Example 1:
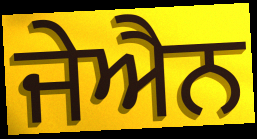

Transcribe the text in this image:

ਜੇਐਨ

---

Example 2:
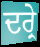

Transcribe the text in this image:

ਦਰ੍ਰੇ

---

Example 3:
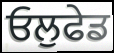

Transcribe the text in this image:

ਓਲੁਫੇਡ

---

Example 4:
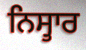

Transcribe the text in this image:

ਨਿਸ੍ਤਾਰ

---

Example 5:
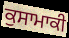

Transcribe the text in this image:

ਕੁਸਾਮਾਕੀ